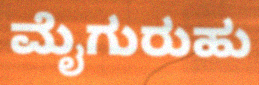
ಮೈಗುರುಹು